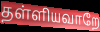
தள்ளியவாறே